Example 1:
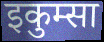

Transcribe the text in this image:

इकुम्सा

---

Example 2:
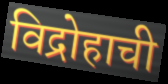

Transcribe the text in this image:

विद्रोहाची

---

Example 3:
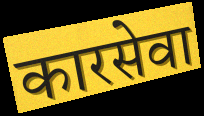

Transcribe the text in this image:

कारसेवा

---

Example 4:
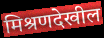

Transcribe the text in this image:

मिश्रणदेखील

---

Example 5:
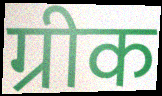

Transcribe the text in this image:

ग्रीक